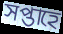
সপ্তাহে